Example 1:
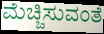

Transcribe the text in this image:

ಮೆಚ್ಚಿಸುವಂತೆ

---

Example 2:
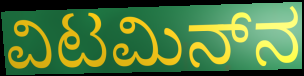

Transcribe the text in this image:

ವಿಟಮಿನ್‌ನ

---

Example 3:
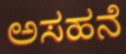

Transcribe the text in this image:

ಅಸಹನೆ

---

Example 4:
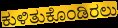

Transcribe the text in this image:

ಕುಳಿತುಕೊಂಡಿರಲು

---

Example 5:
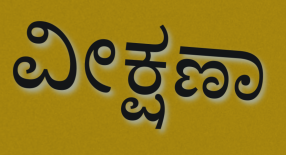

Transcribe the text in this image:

ವೀಕ್ಷಣಾ